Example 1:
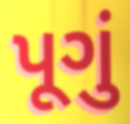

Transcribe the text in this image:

પૂગું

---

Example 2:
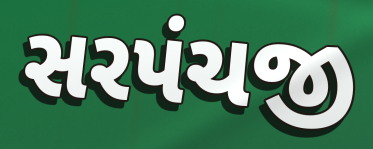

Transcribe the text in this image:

સરપંચજી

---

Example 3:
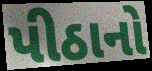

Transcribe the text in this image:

પીઠાનો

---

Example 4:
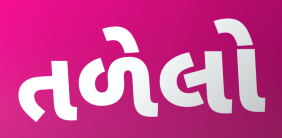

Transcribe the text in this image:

તળેલો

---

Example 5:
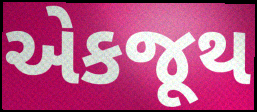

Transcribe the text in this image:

એકજૂથ